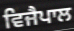
ਵਿਜੈਪਾਲ